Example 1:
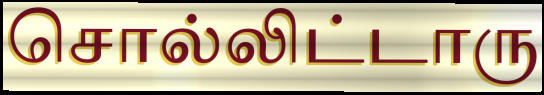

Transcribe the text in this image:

சொல்லிட்டாரு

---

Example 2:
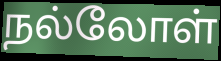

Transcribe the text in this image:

நல்லோள்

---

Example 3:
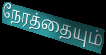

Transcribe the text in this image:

நேரத்தையும்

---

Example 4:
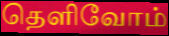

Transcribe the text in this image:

தெளிவோம்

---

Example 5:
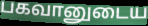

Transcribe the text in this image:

பகவானுடைய